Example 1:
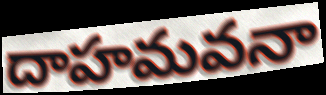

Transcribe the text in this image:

దాహమవనా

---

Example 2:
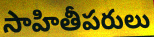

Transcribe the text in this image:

సాహితీపరులు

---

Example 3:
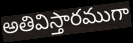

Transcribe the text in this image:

అతివిస్తారముగా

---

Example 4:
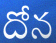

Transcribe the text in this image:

దోన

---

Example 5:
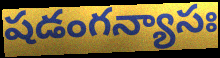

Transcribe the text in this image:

షడంగన్యాసః